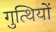
गुत्थियों